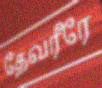
தேவரீரே